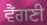
ਵੈਂਗਣੀ